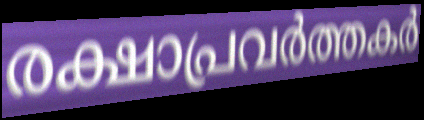
രക്ഷാപ്രവർത്തകർ